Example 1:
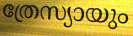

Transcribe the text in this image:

ത്രേസ്യായും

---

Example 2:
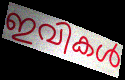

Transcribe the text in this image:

ഇവികൾ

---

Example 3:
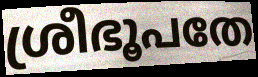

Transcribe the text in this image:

ശ്രീഭൂപതേ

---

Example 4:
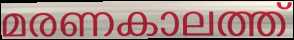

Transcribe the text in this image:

മരണകാലത്ത്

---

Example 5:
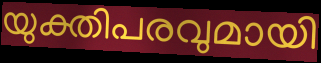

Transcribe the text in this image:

യുക്തിപരവുമായി